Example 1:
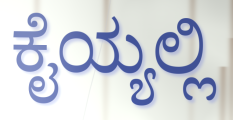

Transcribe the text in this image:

ಕೈಯ್ಯಲ್ಲಿ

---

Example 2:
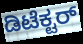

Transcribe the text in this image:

ಡಿಟೆಕ್ಟರ್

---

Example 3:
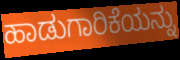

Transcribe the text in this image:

ಹಾಡುಗಾರಿಕೆಯನ್ನು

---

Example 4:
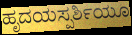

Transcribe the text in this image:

ಹೃದಯಸ್ಪರ್ಶಿಯೂ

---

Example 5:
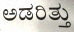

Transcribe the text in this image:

ಅಡರಿತ್ತು